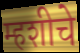
म्हशीचे